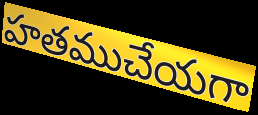
హతముచేయగా